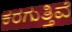
ಕರಗುತ್ತಿವೆ